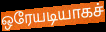
ஒரேயடியாகச்